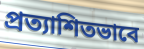
প্রত্যাশিতভাবে